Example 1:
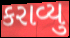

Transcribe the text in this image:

કરાવ્યુ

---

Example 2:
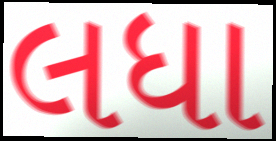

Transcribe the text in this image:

લધા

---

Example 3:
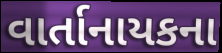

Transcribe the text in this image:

વાર્તાનાયકના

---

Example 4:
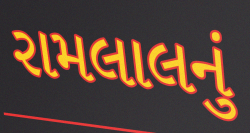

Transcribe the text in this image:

રામલાલનું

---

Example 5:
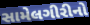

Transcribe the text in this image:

સામેલગીરીનો